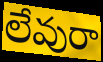
లేవురా